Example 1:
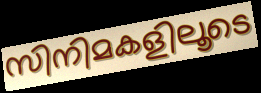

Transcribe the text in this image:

സിനിമകളിലൂടെ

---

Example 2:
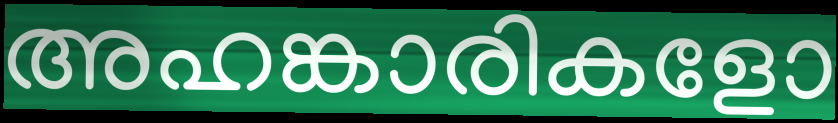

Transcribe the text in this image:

അഹങ്കാരികളോ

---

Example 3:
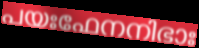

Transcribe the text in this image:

പയഃഫേനനിഭാഃ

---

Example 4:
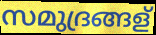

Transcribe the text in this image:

സമുദ്രങ്ങള്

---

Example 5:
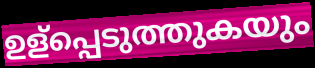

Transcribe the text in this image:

ഉള്പ്പെടുത്തുകയും